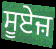
ਸੂਏਜ਼